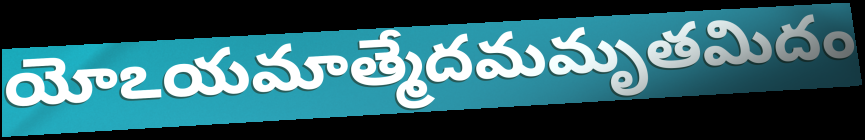
యోఽయమాత్మేదమమృతమిదం